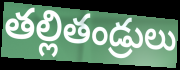
తల్లితండ్రులు